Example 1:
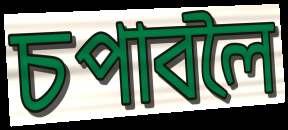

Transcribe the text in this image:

চপাবলৈ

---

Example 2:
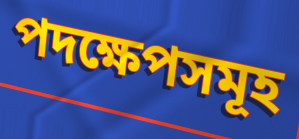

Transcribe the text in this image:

পদক্ষেপসমূহ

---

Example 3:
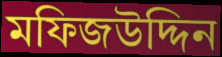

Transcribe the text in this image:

মফিজউদ্দিন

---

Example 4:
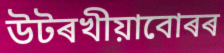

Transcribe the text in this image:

উটৰখীয়াবোৰৰ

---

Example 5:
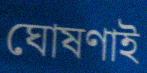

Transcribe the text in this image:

ঘোষণাই